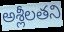
అశ్లీలతని